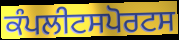
ਕੰਪਲੀਟਸਪੋਰਟਸ